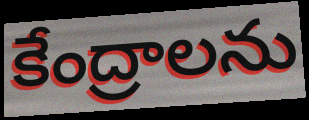
కేంద్రాలను